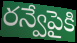
రన్వేపైకి